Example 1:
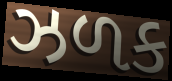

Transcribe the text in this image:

ઝળક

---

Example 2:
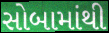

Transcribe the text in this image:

સોબામાંથી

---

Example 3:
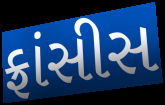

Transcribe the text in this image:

ફ્રાંસીસ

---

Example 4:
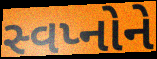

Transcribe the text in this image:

સ્વપ્નોને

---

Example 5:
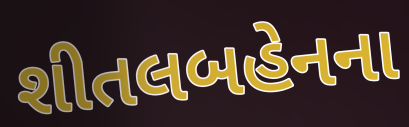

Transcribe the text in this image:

શીતલબહેનના